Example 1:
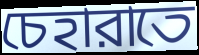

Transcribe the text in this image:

চেহারাতে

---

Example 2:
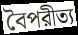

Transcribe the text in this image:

বৈপরীত্য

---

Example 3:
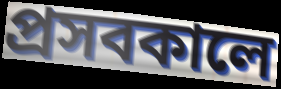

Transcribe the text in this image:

প্রসবকালে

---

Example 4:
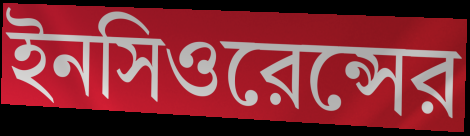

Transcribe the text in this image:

ইনসিওরেন্সের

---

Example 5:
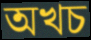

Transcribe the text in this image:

অখচ